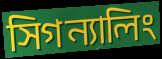
সিগন্যালিং